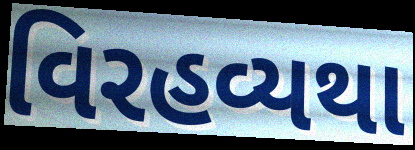
વિરહવ્યથા